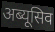
अब्यूसिव